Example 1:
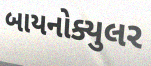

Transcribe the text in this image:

બાયનોક્યુલર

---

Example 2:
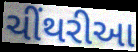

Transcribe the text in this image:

ચીંથરીઆ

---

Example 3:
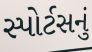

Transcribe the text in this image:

સ્પોર્ટસનું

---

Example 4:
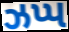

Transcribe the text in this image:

ઝપ્પ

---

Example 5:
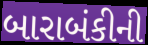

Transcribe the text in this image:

બારાબંકીની